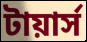
টায়ার্স